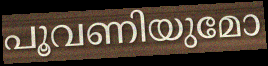
പൂവണിയുമോ